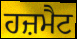
ਹਜ਼ਮੈਟ